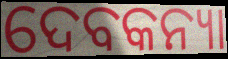
ଦେବକନ୍ୟା